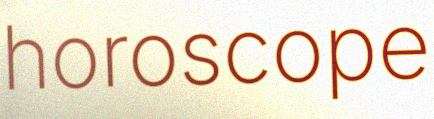
horoscope